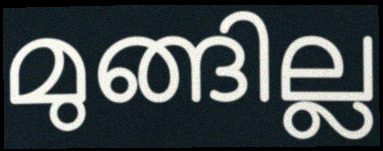
മുങ്ങില്ല